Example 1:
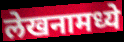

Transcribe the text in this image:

लेखनामध्ये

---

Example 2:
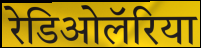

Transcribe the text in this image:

रेडिओलॅरिया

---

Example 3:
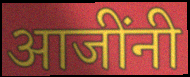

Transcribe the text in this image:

आजींनी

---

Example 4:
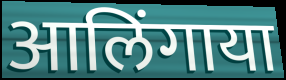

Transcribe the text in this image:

आलिंगाया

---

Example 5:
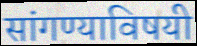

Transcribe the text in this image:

सांगण्याविषयी